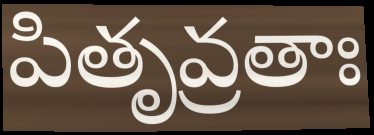
పితృవ్రతాః